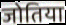
जोतिया